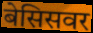
बेसिसवर